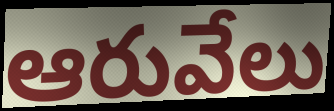
ఆరువేలు